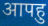
आपहु